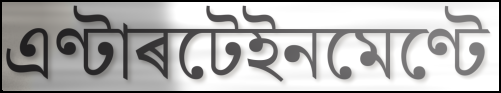
এণ্টাৰটেইনমেণ্টে